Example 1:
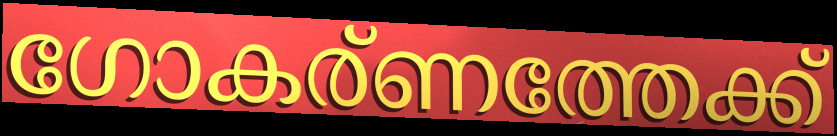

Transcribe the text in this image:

ഗോകര്ണത്തേക്ക്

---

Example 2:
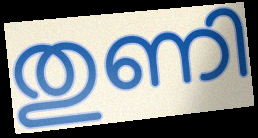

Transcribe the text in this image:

തുണി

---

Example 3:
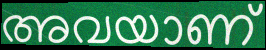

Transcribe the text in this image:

അവയാണ്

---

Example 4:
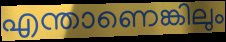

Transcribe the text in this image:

എന്താണെങ്കിലും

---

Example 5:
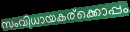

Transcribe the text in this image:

സംവിധായകര്ക്കൊപ്പം